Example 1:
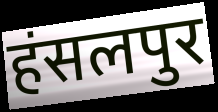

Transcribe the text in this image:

हंसलपुर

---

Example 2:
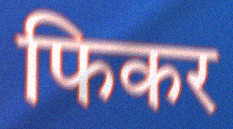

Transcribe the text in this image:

फिकर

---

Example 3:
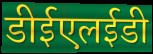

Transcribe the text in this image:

डीईएलईडी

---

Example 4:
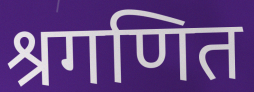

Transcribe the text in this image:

श्रगणित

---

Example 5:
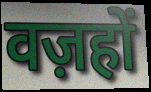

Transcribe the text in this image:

वज़हों